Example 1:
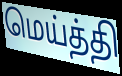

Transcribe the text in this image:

மெய்த்தி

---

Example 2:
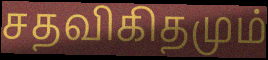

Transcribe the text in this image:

சதவிகிதமும்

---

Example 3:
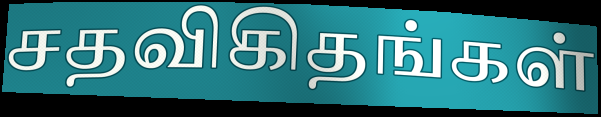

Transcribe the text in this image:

சதவிகிதங்கள்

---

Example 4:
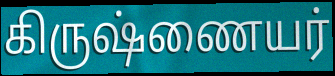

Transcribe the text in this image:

கிருஷ்ணையர்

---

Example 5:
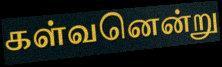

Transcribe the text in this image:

கள்வனென்று